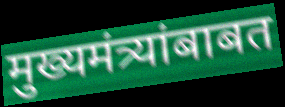
मुख्यमंत्र्यांबाबत